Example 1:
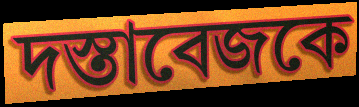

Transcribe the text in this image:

দস্তাবেজকে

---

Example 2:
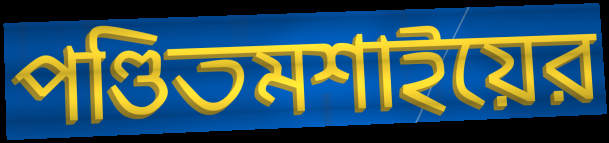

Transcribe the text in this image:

পণ্ডিতমশাইয়ের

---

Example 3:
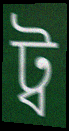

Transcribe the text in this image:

ট্ব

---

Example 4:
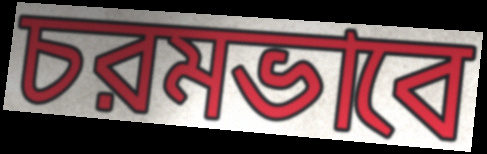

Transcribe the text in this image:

চরমভাবে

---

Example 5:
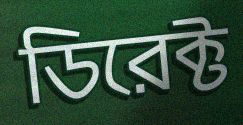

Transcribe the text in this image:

ডিরেক্ট